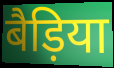
बैड़िया